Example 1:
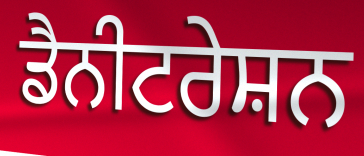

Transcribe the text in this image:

ਡੈਨੀਟਰੇਸ਼ਨ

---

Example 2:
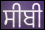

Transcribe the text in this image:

ਸੀਬੀ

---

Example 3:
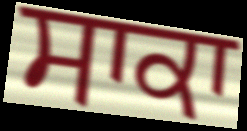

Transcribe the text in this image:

ਸਾਕਾ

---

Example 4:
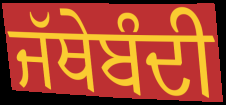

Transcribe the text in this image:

ਜੱਥੇਬੰਦੀ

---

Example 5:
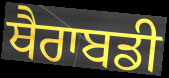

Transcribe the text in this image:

ਥੈਰਾਬਡੀ